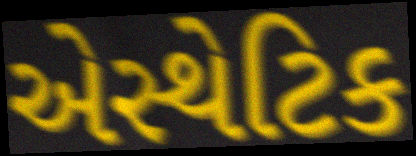
એસ્થેટિક